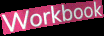
Workbook